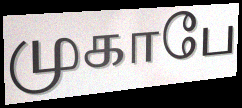
முகாபே